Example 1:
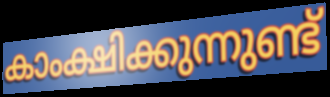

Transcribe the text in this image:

കാംക്ഷിക്കുന്നുണ്ട്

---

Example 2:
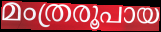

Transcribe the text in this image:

മംത്രരൂപായ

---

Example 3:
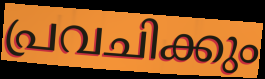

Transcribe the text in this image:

പ്രവചിക്കും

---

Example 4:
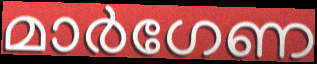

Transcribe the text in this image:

മാർഗേണ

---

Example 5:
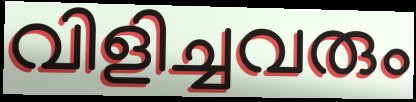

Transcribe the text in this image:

വിളിച്ചവരും